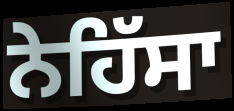
ਨੇਹਿੱਸਾ